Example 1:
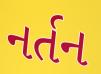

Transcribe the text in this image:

નર્તન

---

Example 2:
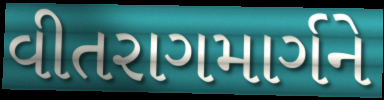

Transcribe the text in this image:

વીતરાગમાર્ગને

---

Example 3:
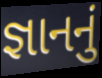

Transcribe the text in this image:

જ્ઞાનનું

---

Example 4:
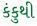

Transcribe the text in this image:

કંકુથી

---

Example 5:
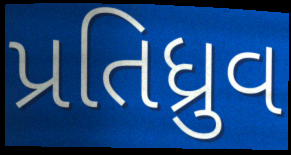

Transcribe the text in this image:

પ્રતિધ્રુવ